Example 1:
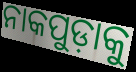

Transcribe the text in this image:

ନାକପୁଡ଼ାକୁ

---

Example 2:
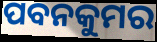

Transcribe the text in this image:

ପବନକୁମର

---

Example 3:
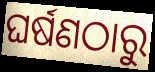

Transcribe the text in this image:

ଘର୍ଷଣଠାରୁ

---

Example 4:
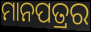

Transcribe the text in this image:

ମାନପତ୍ରର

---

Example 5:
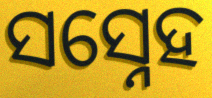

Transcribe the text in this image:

ସସ୍ନେହ